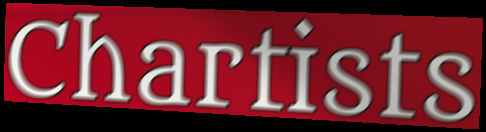
Chartists